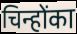
चिन्होंका